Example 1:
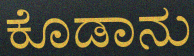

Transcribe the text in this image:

ಕೊಡಾನು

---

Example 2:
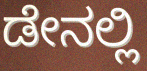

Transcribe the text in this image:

ಡೇನಲ್ಲಿ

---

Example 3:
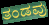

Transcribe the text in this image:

ತಂಡವು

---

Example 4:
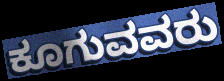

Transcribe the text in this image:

ಕೂಗುವವರು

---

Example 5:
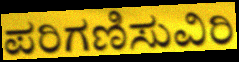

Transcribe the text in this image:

ಪರಿಗಣಿಸುವಿರಿ